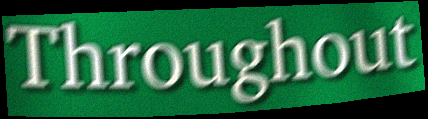
Throughout